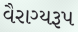
વૈરાગ્યરૂપ